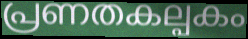
പ്രണതകല്പകം